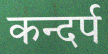
कन्दर्प